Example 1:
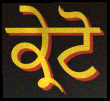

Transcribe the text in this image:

ਕ੍ਰੇਟੋ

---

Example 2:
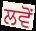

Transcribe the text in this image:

ਲਵੋਂ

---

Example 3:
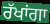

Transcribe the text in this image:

ਰੱਖਾਂਗਾ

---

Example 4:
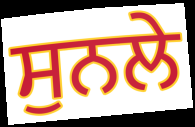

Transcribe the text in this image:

ਸੁਨਲੇ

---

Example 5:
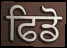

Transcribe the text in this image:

ਫਿਡੋ